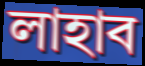
লাহাব